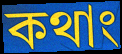
কথাং